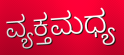
ವ್ಯಕ್ತಮಧ್ಯ